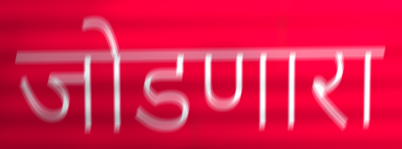
जोडणारा